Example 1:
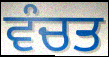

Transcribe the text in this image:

ਵੰਚਤ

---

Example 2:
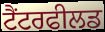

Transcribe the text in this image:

ਟੈਂਟਰਫੀਲਡ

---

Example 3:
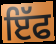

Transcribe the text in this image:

ਇੱਫ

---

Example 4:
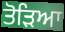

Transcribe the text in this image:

ਤੋਡ਼ਿਆ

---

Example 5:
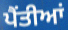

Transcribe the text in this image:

ਪੈਂਤੀਆਂ